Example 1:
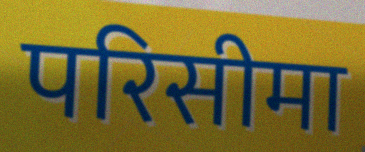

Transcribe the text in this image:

परिसीमा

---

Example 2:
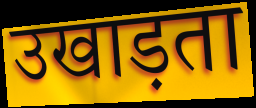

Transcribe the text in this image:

उखाड़ता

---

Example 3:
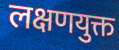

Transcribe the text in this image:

लक्षणयुक्त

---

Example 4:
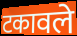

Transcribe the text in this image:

टकावले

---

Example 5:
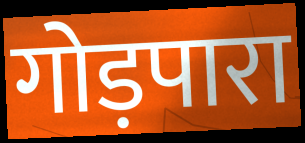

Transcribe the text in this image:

गोड़पारा